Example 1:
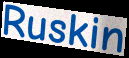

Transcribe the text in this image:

Ruskin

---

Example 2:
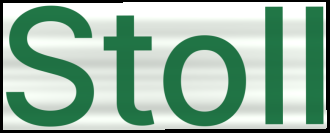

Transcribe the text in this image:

Stoll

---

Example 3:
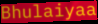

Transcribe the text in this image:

Bhulaiyaa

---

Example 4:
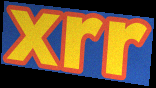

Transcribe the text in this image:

xrr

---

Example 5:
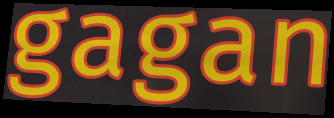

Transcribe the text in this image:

gagan